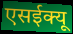
एसईक्यू